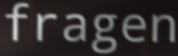
fragen